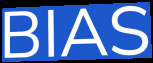
BIAS